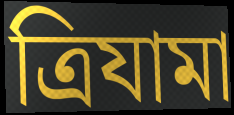
ত্রিযামা